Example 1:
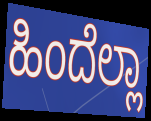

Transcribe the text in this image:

ಹಿಂದೆಲ್ಲಾ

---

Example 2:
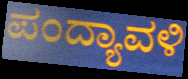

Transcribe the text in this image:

ಪಂದ್ಯಾವಳಿ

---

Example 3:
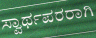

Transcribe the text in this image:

ಸ್ವಾರ್ಥಪರರಾಗಿ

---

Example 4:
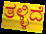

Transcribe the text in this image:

ತಳ್ಳಿದೆ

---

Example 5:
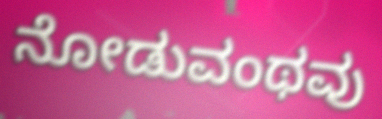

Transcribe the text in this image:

ನೋಡುವಂಥವು